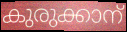
കുരുക്കാന്